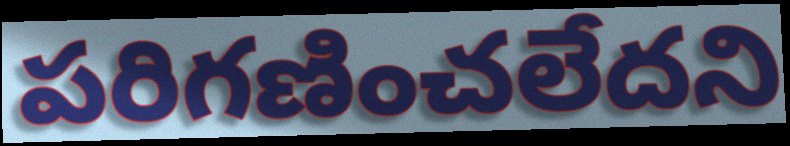
పరిగణించలేదని